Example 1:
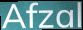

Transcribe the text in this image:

Afzal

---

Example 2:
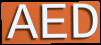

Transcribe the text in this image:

AED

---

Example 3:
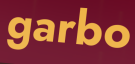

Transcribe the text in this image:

garbo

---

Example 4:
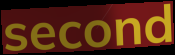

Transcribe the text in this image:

second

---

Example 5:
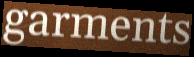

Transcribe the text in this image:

garments